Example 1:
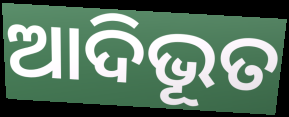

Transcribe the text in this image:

ଆଦିଭୂତ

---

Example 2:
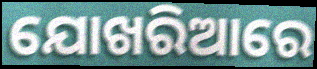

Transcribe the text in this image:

ଯୋଖରିଆରେ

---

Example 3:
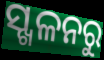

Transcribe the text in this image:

ସ୍ଖଳନରୁ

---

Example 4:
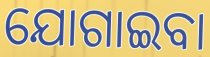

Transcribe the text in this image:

ଯୋଗାଇବା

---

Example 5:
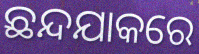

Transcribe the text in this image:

ଛନ୍ଦଯାକରେ